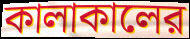
কালাকালের